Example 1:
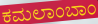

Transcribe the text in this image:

ಕಮಲಾಂಬಾಂ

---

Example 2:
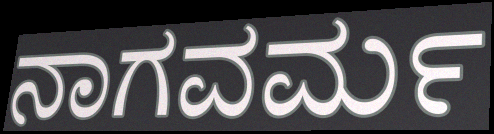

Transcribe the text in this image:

ನಾಗವರ್ಮ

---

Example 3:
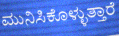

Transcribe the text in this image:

ಮುನಿಸಿಕೊಳ್ಳುತ್ತಾರೆ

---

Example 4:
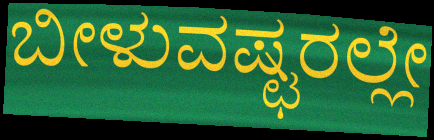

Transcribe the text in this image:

ಬೀಳುವಷ್ಟರಲ್ಲೇ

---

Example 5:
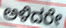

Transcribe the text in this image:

ಅಳಿದರೇ